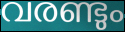
വരണ്ടും